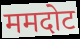
ममदोट